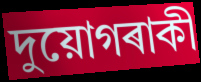
দুয়োগৰাকী